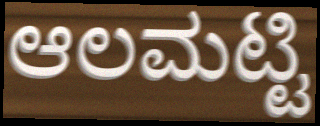
ಆಲಮಟ್ಟಿ